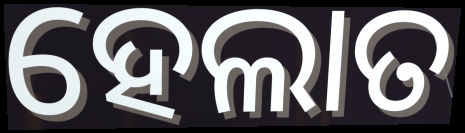
ହେଲାତ